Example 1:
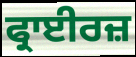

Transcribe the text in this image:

ਫ੍ਰਾਈਰਜ਼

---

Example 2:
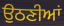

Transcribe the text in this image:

ਉਠਣੀਆਂ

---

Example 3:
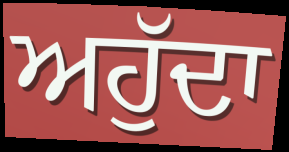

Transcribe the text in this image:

ਅਹੁੱਦਾ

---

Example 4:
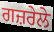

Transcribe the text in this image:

ਗਜ਼ਰੇਲੇ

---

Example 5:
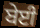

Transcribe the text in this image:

ਬੇਈ